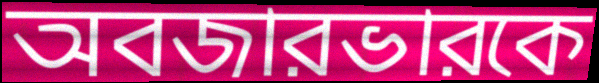
অবজারভারকে